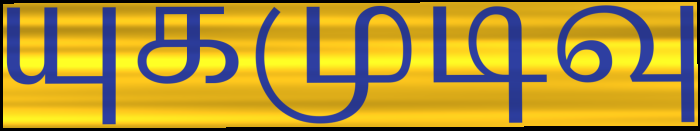
யுகமுடிவு